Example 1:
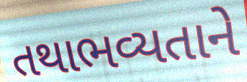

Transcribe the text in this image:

તથાભવ્યતાને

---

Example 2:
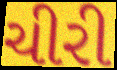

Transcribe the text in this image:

ચીરી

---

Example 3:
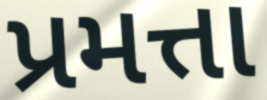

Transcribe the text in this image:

પ્રમત્તા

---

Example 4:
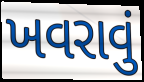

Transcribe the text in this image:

ખવરાવું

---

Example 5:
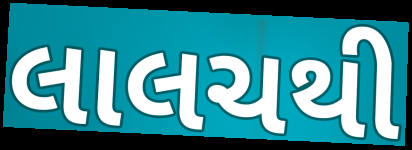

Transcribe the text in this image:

લાલચથી